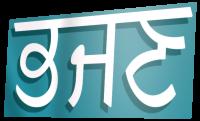
ਭਜਣ